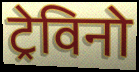
ट्रेविनो